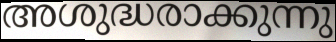
അശുദ്ധരാക്കുന്നു